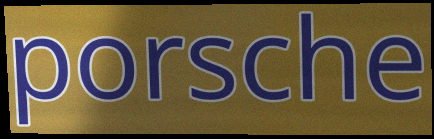
porsche